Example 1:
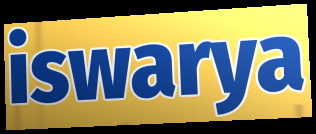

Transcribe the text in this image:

iswarya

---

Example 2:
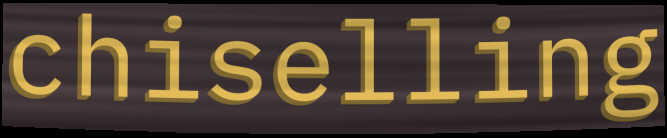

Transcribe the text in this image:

chiselling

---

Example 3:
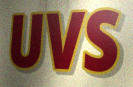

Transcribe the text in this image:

UVS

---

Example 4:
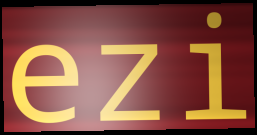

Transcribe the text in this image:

ezi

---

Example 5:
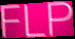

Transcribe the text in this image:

FLP